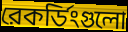
রেকর্ডিংগুলো